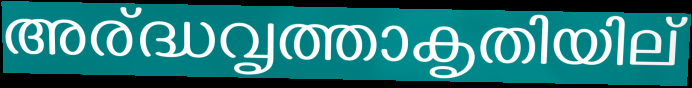
അര്ദ്ധവൃത്താകൃതിയില്